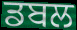
ਡਬਲ